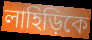
লাহিড়িকে